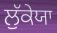
ਲੁੱਕੇਯਾ